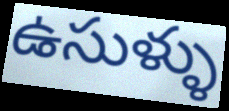
ఉసుళ్ళు